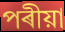
পৰীয়া